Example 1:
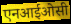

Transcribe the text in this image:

एनआईओसी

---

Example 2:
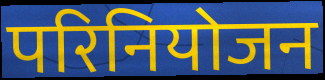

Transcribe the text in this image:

परिनियोजन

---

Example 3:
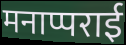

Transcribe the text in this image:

मनाप्पराई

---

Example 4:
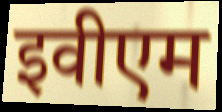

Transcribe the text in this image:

इवीएम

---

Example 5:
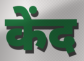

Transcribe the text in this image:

केंद